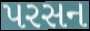
પરસન